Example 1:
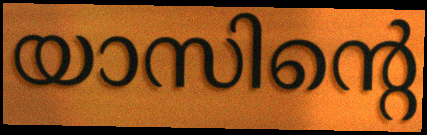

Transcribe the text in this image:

യാസിന്റെ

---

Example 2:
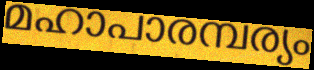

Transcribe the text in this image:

മഹാപാരമ്പര്യം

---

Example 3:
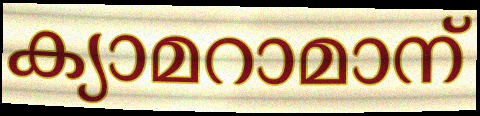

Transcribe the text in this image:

ക്യാമറാമാന്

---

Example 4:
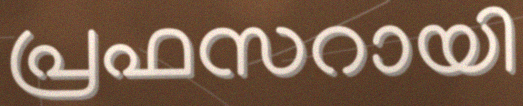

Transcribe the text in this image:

പ്രഫസറായി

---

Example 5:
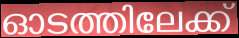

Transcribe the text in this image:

ഓടത്തിലേക്ക്